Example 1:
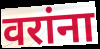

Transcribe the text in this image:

वरांना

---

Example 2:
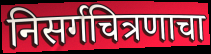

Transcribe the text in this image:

निसर्गचित्रणाचा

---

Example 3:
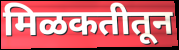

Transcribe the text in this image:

मिळकतीतून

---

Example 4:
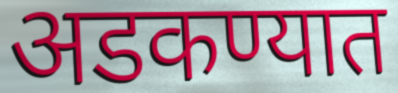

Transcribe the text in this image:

अडकण्यात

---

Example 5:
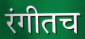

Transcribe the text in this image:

रंगीतच